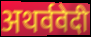
अथर्ववेदी